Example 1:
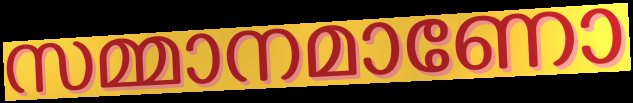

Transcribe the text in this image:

സമ്മാനമാണോ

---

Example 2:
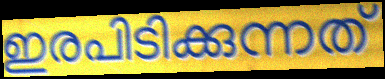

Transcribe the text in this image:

ഇരപിടിക്കുന്നത്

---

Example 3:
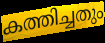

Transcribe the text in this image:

കത്തിച്ചതും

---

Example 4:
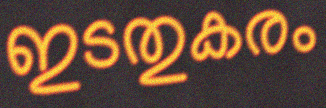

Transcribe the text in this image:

ഇടതുകരം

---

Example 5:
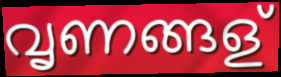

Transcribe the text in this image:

വൃണങ്ങള്